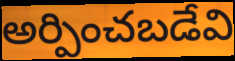
అర్పించబడేవి